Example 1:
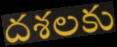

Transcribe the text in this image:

దశలకు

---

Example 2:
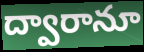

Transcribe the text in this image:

ద్వారానూ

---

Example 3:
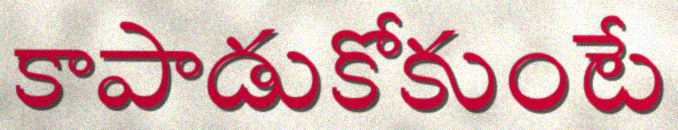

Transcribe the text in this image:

కాపాడుకోకుంటే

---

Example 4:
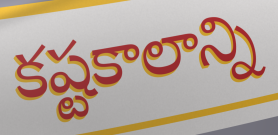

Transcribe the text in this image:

కష్టకాలాన్ని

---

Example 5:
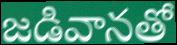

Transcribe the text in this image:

జడివానతో